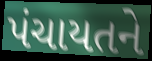
પંચાયતને